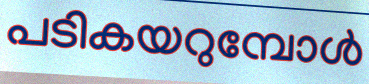
പടികയറുമ്പോൾ